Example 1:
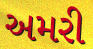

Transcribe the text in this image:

અમરી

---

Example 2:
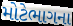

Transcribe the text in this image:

મોટેભાગના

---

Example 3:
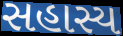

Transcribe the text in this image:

સહાસ્ય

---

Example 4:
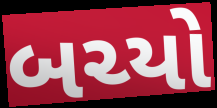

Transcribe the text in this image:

બચ્યો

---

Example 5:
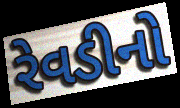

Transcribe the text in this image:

રેવડીનો